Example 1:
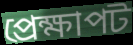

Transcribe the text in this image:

প্ৰেক্ষাপট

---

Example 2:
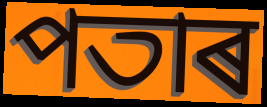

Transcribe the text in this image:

পতাৰ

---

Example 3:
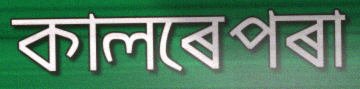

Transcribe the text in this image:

কালৰেপৰা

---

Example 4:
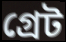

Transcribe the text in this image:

গ্ৰেট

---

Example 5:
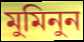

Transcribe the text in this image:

মুমিনুন